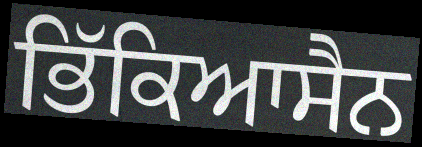
ਭਿੱਕਿਆਸੈਨ